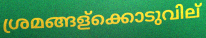
ശ്രമങ്ങള്ക്കൊടുവില്